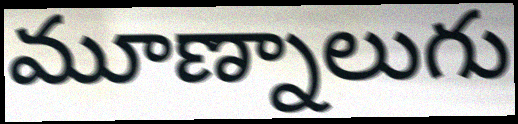
మూణ్నాలుగు